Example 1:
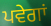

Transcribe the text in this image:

ਪਵੇਗਾਂ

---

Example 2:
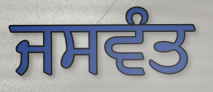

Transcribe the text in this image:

ਜਸਵੰਤ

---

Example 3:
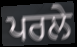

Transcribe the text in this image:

ਪਰਲੇ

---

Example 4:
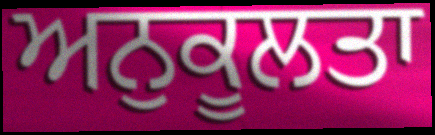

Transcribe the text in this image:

ਅਨੁਕੂਲਤਾ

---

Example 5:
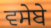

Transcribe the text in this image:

ਵਸੇਬੇ